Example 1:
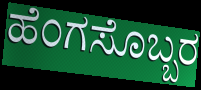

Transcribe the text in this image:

ಹೆಂಗಸೊಬ್ಬರ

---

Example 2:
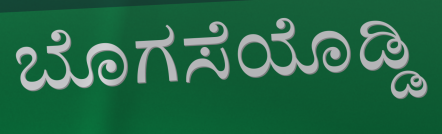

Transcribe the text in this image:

ಬೊಗಸೆಯೊಡ್ಡಿ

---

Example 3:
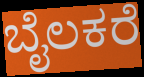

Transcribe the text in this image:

ಬೈಲಕರೆ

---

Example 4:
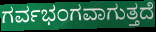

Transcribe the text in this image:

ಗರ್ವಭಂಗವಾಗುತ್ತದೆ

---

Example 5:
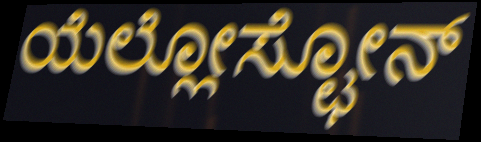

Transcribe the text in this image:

ಯೆಲ್ಲೋಸ್ಟೋನ್